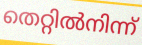
തെറ്റിൽനിന്ന്